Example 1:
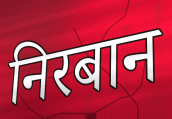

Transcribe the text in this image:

निरबान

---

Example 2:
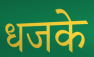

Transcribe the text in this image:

धजके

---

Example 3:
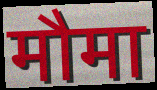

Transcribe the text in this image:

मौमा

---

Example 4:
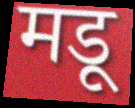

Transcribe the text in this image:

मडू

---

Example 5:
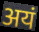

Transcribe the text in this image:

अयं